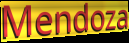
Mendoza